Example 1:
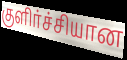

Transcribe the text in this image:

குளிர்ச்சியான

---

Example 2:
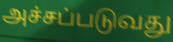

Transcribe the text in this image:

அச்சப்படுவது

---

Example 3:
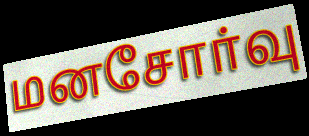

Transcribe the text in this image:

மனசோர்வு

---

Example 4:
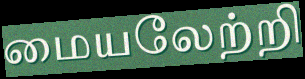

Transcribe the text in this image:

மையலேற்றி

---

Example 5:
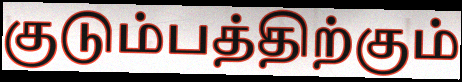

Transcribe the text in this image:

குடும்பத்திற்கும்